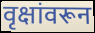
वृक्षांवरून